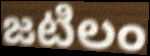
జటిలం